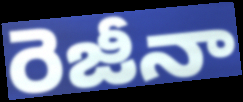
రెజీనా